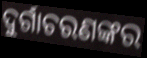
ଦୁର୍ଗାଚରଣଙ୍କର